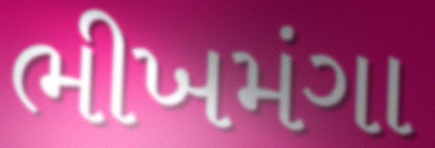
ભીખમંગા